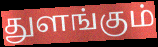
துளங்கும்